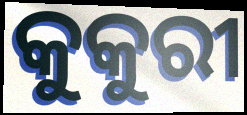
କୁକୁରୀ